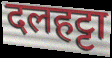
दलहट्टा